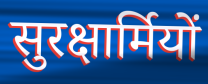
सुरक्षार्मियों